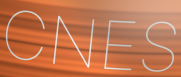
CNES